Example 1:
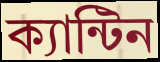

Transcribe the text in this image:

ক্যান্টিন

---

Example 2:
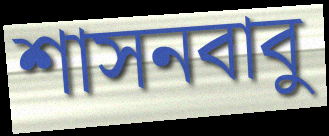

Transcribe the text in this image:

শাসনবাবু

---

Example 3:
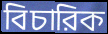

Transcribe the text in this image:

বিচারিক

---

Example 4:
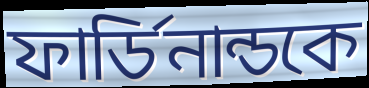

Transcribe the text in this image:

ফার্ডিনান্ডকে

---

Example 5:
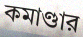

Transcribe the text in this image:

কমাণ্ডার